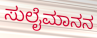
ಸುಲೈಮಾನನ